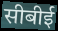
सीबीई